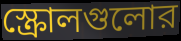
স্ক্রোলগুলোর